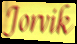
Jorvik